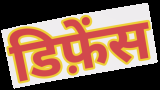
डिफ़ेंस